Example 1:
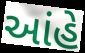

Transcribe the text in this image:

આંહે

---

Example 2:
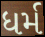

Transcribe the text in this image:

ધર્મ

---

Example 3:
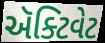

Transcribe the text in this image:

ઍક્ટિવેટ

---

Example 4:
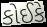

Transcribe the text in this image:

કોઈકે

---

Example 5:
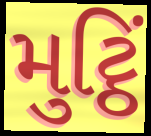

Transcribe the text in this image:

મુટ્ઠિં